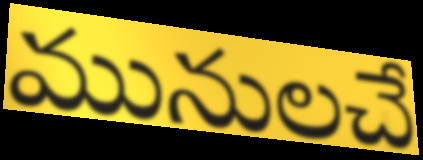
మునులచే